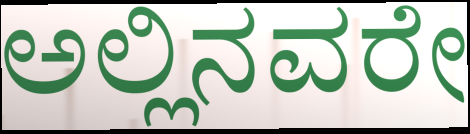
ಅಲ್ಲಿನವರೇ